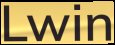
Lwin